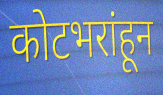
कोटभरांहून